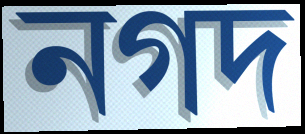
নগদ